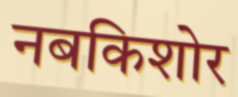
नबकिशोर